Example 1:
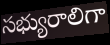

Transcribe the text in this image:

సభ్యురాలిగా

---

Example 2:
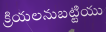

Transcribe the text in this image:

క్రియలనుబట్టియు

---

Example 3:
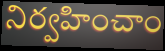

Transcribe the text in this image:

నిర్వహించాం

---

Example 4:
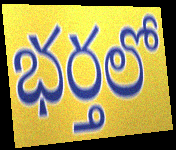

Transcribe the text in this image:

భర్తలో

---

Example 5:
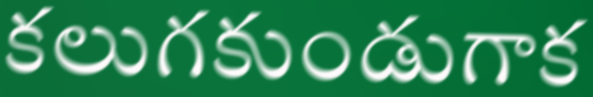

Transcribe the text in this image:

కలుగకుండుగాక